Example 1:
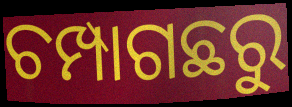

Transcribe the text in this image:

ଚମ୍ପାଗଛରୁ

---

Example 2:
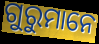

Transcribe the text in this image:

ଗୁରୁମାନେ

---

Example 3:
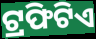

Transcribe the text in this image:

ଟ୍ରଫିଟିଏ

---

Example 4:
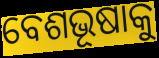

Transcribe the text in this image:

ବେଶଭୂଷାକୁ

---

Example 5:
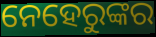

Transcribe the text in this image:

ନେହେରୁଙ୍କର